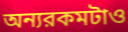
অন্যরকমটাও